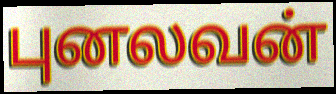
புனலவன்